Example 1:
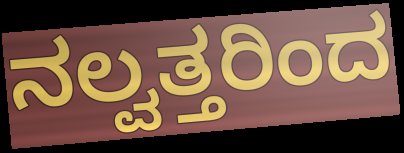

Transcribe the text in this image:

ನಲ್ವತ್ತರಿಂದ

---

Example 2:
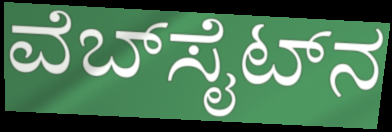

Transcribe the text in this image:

ವೆಬ್‍ಸೈಟ್‍ನ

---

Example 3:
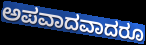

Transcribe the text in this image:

ಅಪವಾದವಾದರೂ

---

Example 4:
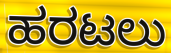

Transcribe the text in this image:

ಹರಟಲು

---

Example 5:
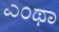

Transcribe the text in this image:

ಎಂಥಾ